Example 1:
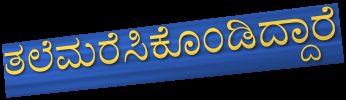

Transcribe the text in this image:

ತಲೆಮರೆಸಿಕೊಂಡಿದ್ದಾರೆ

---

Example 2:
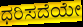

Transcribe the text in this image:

ಧರಿಸದೆಯೇ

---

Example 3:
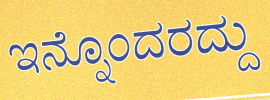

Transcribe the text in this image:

ಇನ್ನೊಂದರದ್ದು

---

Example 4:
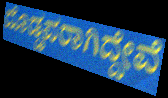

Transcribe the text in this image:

ದೊಡ್ಡವರಾಗಿದ್ದೇವೆ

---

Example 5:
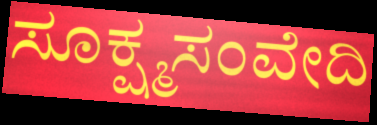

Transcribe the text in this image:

ಸೂಕ್ಷ್ಮಸಂವೇದಿ